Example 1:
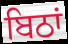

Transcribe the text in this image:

ਬਿਠਾਂ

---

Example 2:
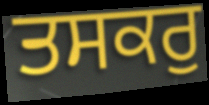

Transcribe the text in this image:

ਤਸਕਰੁ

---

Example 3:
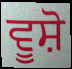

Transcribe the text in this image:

ਵੂਸ਼ੋ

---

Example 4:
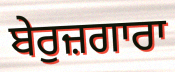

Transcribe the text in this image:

ਬੇਰੁਜ਼ਗਾਰਾ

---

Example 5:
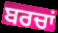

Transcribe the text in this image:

ਬਰਚਾਂ